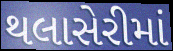
થલાસેરીમાં